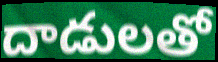
దాడులతో